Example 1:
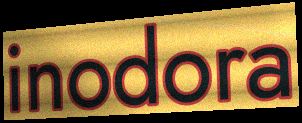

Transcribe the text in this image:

inodora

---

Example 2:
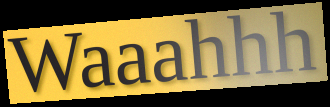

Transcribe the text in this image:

Waaahhh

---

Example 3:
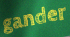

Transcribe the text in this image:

gander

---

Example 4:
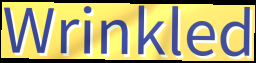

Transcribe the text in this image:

Wrinkled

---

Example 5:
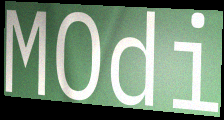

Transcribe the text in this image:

MOdi